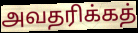
அவதரிக்கத்